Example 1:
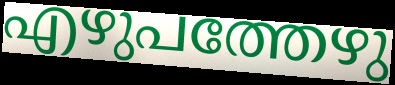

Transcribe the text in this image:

എഴുപത്തേഴു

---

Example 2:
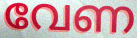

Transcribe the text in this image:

വേണ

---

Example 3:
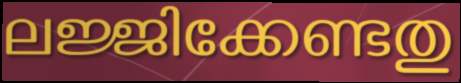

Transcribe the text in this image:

ലജ്ജിക്കേണ്ടതു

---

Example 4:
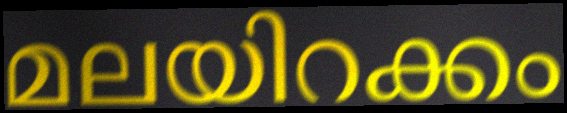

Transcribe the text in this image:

മലയിറക്കം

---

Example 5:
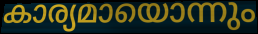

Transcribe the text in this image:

കാര്യമായൊന്നും